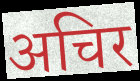
अचिर